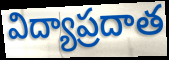
విద్యాప్రదాత